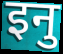
इनु